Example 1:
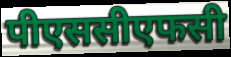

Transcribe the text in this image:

पीएससीएफसी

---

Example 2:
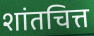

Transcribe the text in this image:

शांतचित्त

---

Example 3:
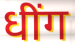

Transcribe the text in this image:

धींग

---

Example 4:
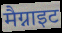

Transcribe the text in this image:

मैग्नाइट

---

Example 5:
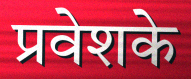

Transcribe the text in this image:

प्रवेशके